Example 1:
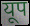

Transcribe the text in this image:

यूप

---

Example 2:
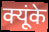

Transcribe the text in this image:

क्यूंके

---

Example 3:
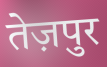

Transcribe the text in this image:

तेज़पुर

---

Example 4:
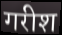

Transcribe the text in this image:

गरीश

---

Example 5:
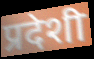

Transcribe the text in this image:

प्रदेशी